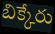
బిక్కేరు